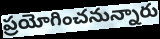
ప్రయోగించనున్నారు